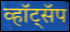
व्हॉट्सॅप